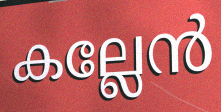
കല്ലേൻ